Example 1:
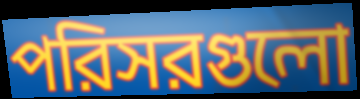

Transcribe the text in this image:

পরিসরগুলো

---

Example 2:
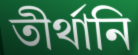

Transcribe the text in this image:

তীর্থানি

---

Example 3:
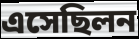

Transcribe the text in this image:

এসেছিলন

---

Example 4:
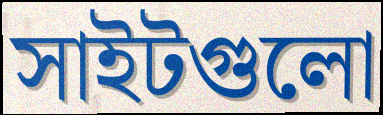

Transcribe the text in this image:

সাইটগুলো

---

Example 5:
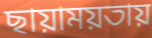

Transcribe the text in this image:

ছায়াময়তায়